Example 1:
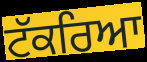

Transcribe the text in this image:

ਟੱਕਰਿਆ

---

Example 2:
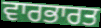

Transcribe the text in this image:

ਵਾਰਭਾਰਤ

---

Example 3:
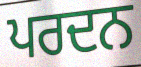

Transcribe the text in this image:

ਪਰਦਨ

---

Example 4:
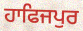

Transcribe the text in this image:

ਹਾਫਿਜਪੁਰ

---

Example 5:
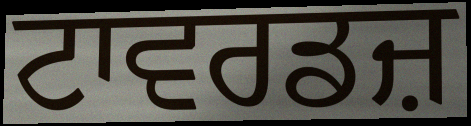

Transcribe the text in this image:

ਟਾਵਰਡਜ਼